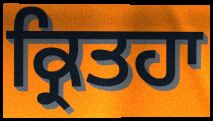
ਕ੍ਰਿਤਹਾ